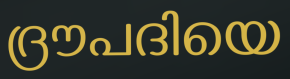
ദ്രൗപദിയെ